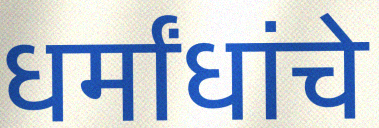
धर्मांधांचे